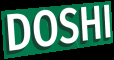
DOSHI